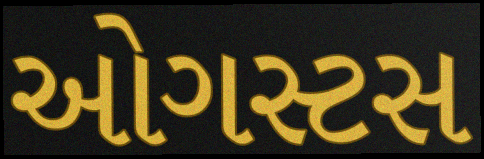
ઓગસ્ટસ